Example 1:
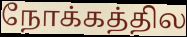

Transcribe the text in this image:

நோக்கத்தில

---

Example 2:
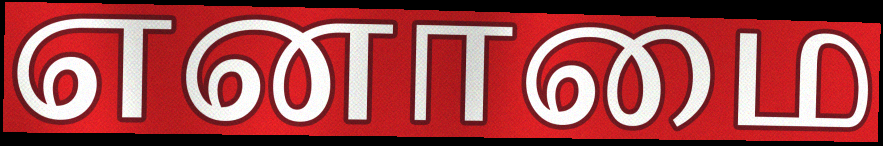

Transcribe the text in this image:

எனாமை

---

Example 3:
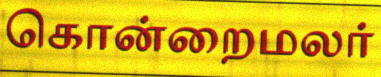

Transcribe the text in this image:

கொன்றைமலர்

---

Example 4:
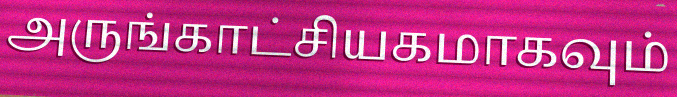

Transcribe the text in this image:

அருங்காட்சியகமாகவும்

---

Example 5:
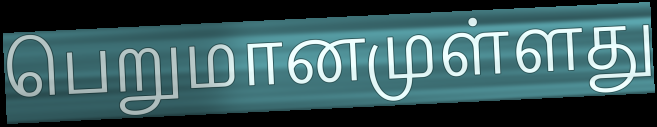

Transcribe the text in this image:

பெறுமானமுள்ளது